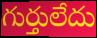
గుర్తులేదు